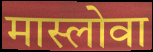
मास्लोवा